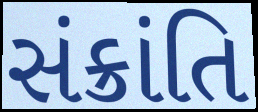
સંક્રાંતિ